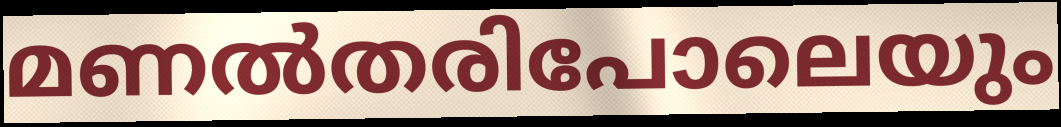
മണൽതരിപോലെയും